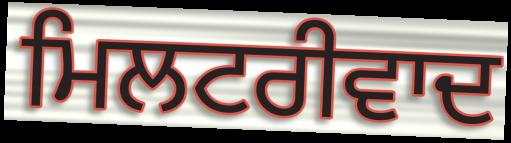
ਮਿਲਟਰੀਵਾਦ